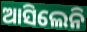
ଆସିଲେନି